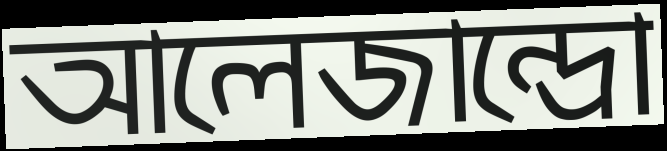
আলেজান্দ্রো